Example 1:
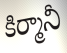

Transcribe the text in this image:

కిర్మానీ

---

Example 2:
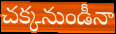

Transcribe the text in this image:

చక్కనుండీనా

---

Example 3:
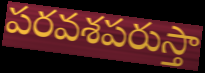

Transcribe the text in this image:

పరవశపరుస్తా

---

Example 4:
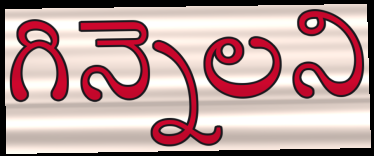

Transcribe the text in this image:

గిన్నెలని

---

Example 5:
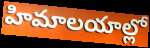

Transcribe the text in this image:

హిమాలయాల్లో